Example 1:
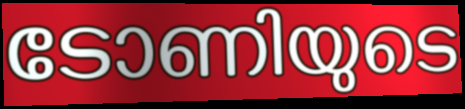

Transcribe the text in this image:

ടോണിയുടെ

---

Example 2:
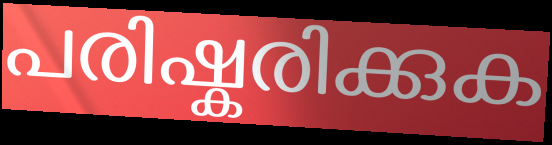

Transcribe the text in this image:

പരിഷ്കരിക്കുക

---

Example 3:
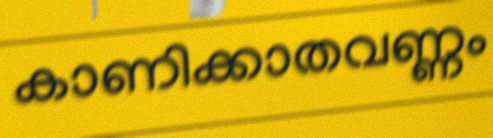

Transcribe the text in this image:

കാണിക്കാതവണ്ണം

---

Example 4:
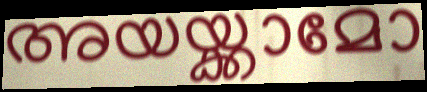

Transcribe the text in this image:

അയയ്ക്കാമോ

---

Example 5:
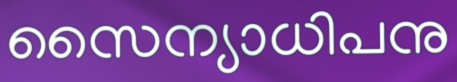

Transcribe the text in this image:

സൈന്യാധിപനു